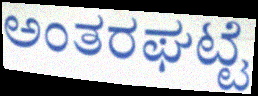
ಅಂತರಘಟ್ಟೆ